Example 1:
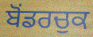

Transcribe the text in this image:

ਬੋਂਡਰਚੁਕ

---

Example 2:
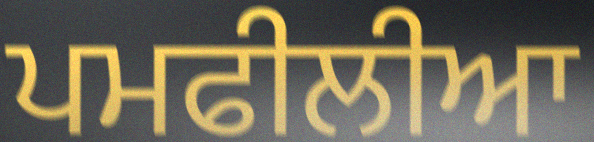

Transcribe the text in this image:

ਪਮਫੀਲੀਆ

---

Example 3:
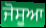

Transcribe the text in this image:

ਜੋਸੂਆ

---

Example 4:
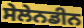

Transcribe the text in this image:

ਸੇਲੇਨਡੀਨ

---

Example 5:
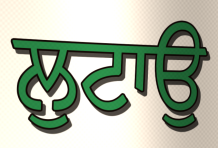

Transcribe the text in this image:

ਲੁਟਾਉ